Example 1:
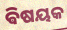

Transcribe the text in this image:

ଵିଷୟକ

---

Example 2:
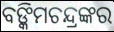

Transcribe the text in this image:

ବଙ୍କିମଚନ୍ଦ୍ରଙ୍କର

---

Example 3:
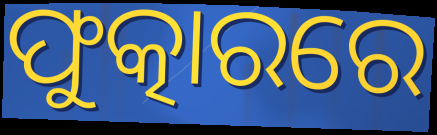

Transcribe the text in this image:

ଫୁତ୍କାରରେ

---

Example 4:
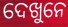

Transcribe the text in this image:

ଦେଖୁନେ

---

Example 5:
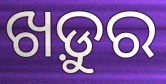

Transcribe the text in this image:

ଖଡ଼ୁର